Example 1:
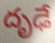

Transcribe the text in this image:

దృఢే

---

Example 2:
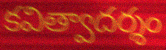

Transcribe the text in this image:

కవిత్వాదర్శం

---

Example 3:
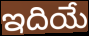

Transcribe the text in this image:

ఇదియే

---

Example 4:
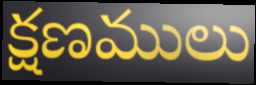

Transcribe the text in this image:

క్షణములు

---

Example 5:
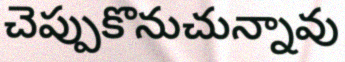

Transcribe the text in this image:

చెప్పుకొనుచున్నావు